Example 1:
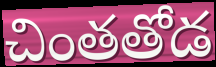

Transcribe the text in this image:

చింతతోడ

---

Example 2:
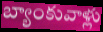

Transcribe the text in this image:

బ్యాంకువాళ్లు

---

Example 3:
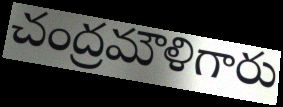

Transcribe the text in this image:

చంద్రమౌళిగారు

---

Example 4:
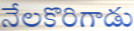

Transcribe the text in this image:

నేలకొరిగాడు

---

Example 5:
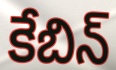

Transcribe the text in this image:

కేబిన్